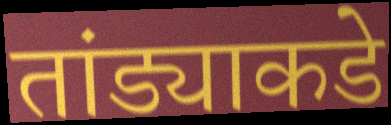
तांड्याकडे